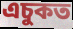
এচুকত